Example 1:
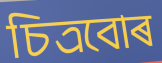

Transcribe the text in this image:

চিত্ৰবোৰ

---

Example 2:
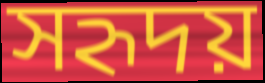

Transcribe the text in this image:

সহৃদয়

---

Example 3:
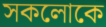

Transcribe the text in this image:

সকলোকে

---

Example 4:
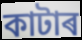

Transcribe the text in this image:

কাটাৰ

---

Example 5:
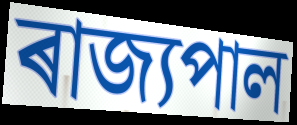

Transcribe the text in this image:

ৰাজ্যপাল